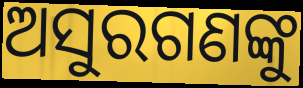
ଅସୁରଗଣଙ୍କୁ